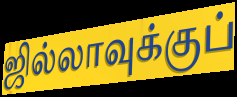
ஜில்லாவுக்குப்